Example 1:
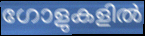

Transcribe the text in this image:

ഗോളുകളിൽ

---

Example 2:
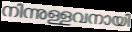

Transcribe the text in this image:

നിന്നുള്ളവനായി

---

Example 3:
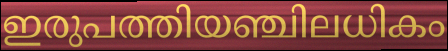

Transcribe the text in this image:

ഇരുപത്തിയഞ്ചിലധികം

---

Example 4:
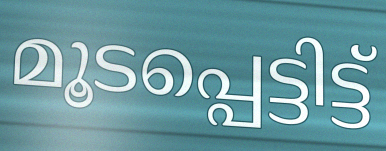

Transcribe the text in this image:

മൂടപ്പെട്ടിട്ട്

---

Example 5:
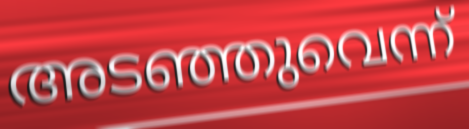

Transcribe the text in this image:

അടഞ്ഞുവെന്ന്